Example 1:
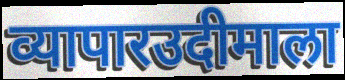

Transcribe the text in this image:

व्यापारउदीमाला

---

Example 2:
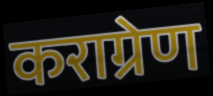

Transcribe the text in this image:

कराग्रेण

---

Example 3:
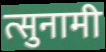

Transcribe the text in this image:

त्सुनामी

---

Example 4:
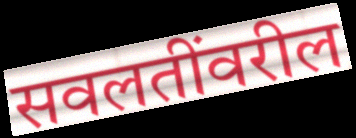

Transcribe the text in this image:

सवलतींवरील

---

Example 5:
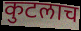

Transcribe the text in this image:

कुटलाच